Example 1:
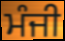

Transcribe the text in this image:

ਮੰਜੀ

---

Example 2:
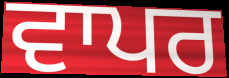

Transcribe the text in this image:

ਵਾਪਰ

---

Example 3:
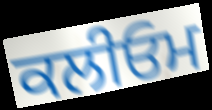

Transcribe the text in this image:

ਕਲੀਓਮ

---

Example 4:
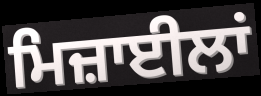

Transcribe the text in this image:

ਮਿਜ਼ਾਈਲਾਂ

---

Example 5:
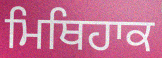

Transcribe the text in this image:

ਮਿਥਿਹਾਕ